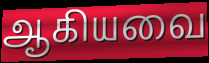
ஆகியவை